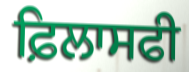
ਫ਼ਿਲਾਸਫੀ